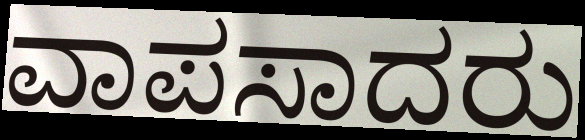
ವಾಪಸಾದರು